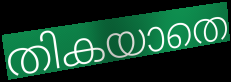
തികയാതെ